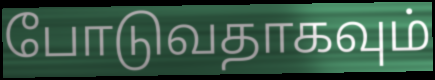
போடுவதாகவும்